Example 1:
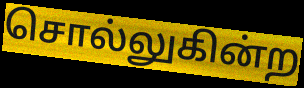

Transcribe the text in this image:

சொல்லுகின்ற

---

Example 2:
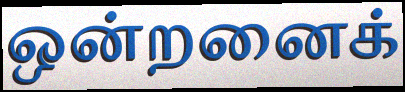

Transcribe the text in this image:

ஒன்றனைக்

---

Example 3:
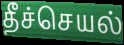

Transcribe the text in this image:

தீச்செயல்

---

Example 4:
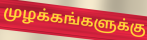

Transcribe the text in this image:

முழக்கங்களுக்கு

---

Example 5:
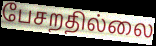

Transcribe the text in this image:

பேசறதில்லை